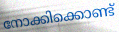
നോക്കിക്കൊണ്ട്